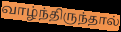
வாழ்ந்திருந்தால்